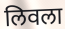
लिवला